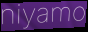
niyamo